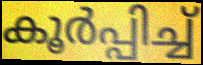
കൂർപ്പിച്ച്